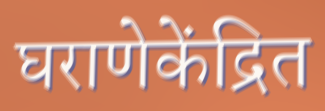
घराणेकेंद्रित